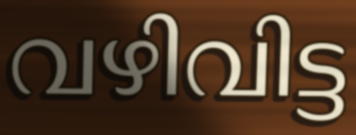
വഴിവിട്ട